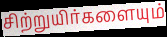
சிற்றுயிர்களையும்